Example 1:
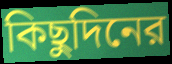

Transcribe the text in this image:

কিছুদিনের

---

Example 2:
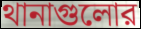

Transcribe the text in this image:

থানাগুলোর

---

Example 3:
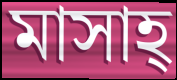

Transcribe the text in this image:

মাসাহ্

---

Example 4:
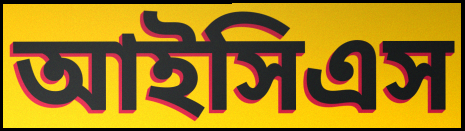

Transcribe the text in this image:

আইসিএস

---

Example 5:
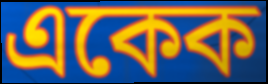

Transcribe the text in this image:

একেক